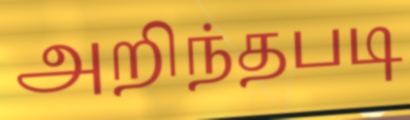
அறிந்தபடி